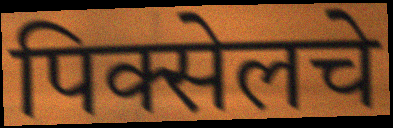
पिक्सेलचे